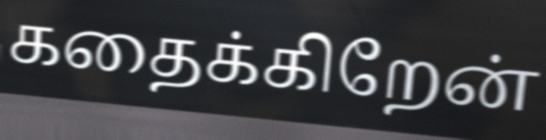
கதைக்கிறேன்